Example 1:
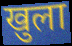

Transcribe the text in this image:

खुला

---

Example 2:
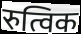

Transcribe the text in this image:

रुत्विक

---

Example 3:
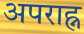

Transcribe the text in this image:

अपराह्न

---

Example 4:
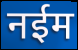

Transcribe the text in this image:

नईम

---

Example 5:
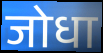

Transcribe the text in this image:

जोधा